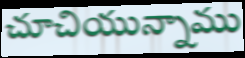
చూచియున్నాము